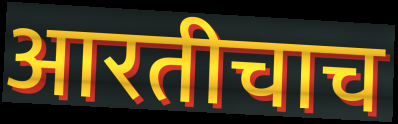
आरतीचाच